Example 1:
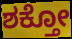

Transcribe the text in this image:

ಶಕ್ತೋ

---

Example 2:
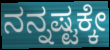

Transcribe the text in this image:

ನನ್ನಷ್ಟಕ್ಕೇ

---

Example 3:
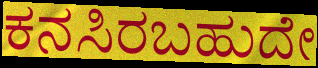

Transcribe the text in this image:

ಕನಸಿರಬಹುದೇ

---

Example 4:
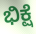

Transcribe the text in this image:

ಭಿಕ್ಷೆ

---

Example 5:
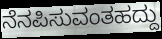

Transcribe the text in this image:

ನೆನಪಿಸುವಂತಹದ್ದು